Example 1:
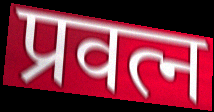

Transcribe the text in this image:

प्रवत्न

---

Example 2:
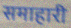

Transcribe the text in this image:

समाहारी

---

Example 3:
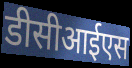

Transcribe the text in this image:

डीसीआईएस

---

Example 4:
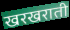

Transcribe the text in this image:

खरखराती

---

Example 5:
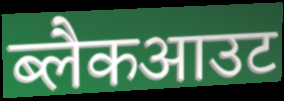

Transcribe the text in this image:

ब्लैकआउट